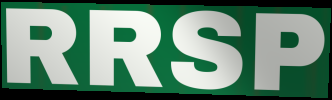
RRSP